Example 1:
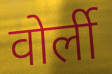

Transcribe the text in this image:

वोर्ली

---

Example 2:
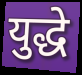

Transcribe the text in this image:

युद्धे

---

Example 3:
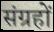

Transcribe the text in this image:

संग्रहों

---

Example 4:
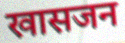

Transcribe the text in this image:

खासजन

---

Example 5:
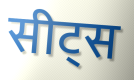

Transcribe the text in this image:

सीट्स